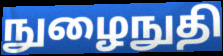
நுழைநுதி